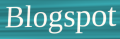
Blogspot